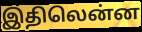
இதிலென்ன